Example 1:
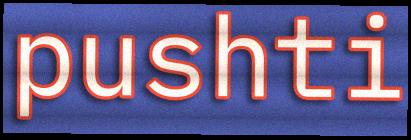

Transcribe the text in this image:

pushti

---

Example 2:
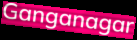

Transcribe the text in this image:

Ganganagar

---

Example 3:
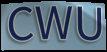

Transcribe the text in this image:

CWU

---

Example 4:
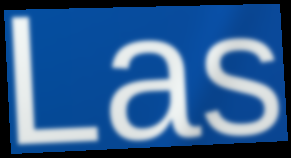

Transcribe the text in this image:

Las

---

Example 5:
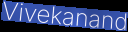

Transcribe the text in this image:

Vivekanand